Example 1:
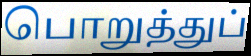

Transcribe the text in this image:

பொறுத்துப்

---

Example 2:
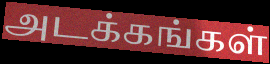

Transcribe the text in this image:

அடக்கங்கள்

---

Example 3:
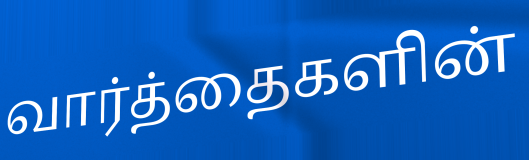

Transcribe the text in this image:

வார்த்தைகளின்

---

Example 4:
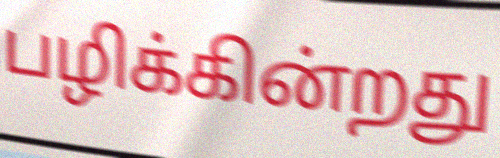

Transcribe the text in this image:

பழிக்கின்றது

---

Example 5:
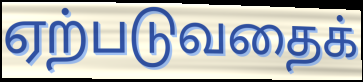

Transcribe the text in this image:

ஏற்படுவதைக்